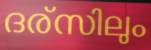
ദര്സിലും